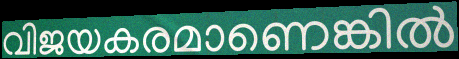
വിജയകരമാണെങ്കിൽ